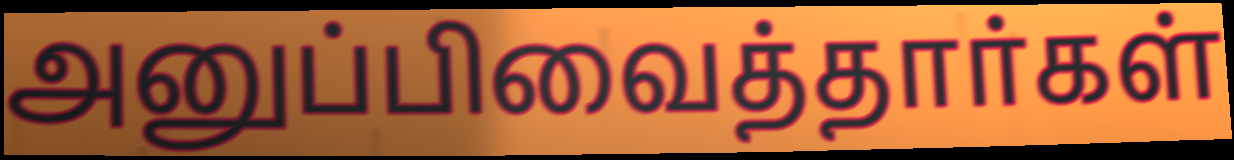
அனுப்பிவைத்தார்கள்